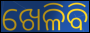
ଖେଳିବି